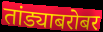
तांड्याबरोबर